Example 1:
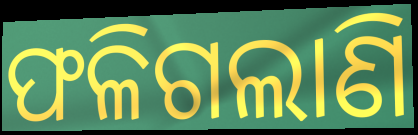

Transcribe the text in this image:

ଫଳିଗଲାଣି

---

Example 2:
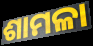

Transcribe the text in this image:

ଶାମଳା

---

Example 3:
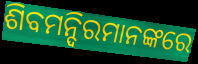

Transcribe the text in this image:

ଶିବମନ୍ଦିରମାନଙ୍କରେ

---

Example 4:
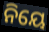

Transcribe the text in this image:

ନିୟେ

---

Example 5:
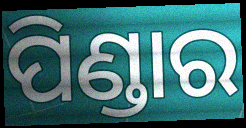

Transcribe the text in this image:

ପିଣ୍ଡାର